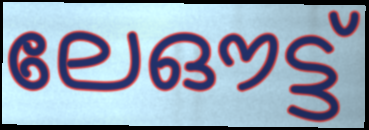
ലേഔട്ട്